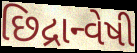
છિદ્રાન્વેષી